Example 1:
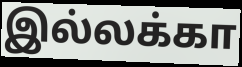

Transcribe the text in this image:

இல்லக்கா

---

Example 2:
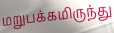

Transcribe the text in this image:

மறுபக்கமிருந்து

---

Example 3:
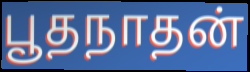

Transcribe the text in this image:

பூதநாதன்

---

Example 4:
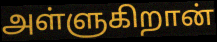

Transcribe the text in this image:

அள்ளுகிறான்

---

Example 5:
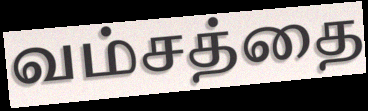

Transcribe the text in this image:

வம்சத்தை